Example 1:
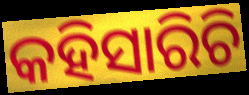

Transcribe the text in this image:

କହିସାରିଚି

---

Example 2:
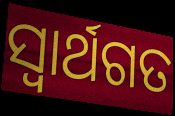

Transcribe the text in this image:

ସ୍ୱାର୍ଥଗତ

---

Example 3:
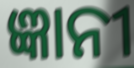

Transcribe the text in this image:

ଜ୍ଞାନୀ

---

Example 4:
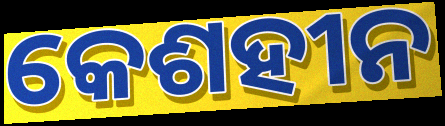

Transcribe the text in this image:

କେଶହୀନ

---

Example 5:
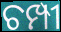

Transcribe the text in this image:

ଚମ୍ପୀ